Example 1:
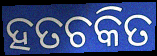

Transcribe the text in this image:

ହତଚକିତ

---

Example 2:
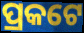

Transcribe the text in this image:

ପ୍ରକଟେ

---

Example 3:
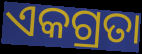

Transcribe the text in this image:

ଏକଗ୍ରତା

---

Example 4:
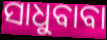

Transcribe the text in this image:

ସାଧୁବାବା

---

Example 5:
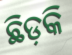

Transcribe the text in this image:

ଛିଡ଼କି